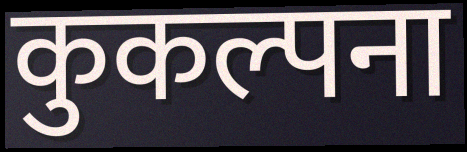
कुकल्पना